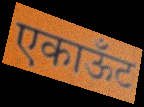
एकाऊँट